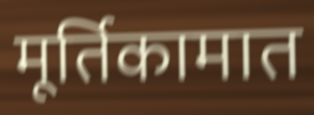
मूर्तिकामात